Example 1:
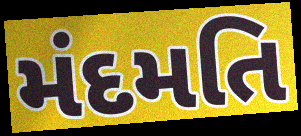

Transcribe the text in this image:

મંદમતિ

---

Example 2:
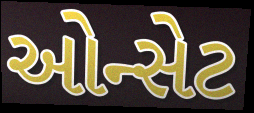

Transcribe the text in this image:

ઓન્સેટ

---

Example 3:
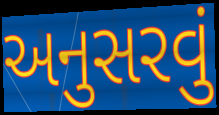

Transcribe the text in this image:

અનુસરવું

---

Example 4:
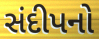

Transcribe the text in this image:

સંદીપનો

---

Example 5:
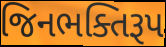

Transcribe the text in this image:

જિનભક્તિરૂપ